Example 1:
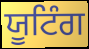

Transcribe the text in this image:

ਯੂਟਿੰਗ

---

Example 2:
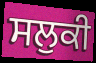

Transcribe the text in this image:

ਸਲੁਕੀ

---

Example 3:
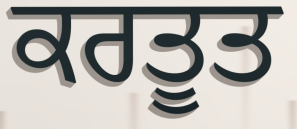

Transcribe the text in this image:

ਕਰਤੂਤ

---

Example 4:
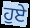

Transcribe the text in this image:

ਹੁਏ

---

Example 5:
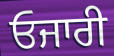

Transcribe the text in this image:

ਓਜਾਰੀ